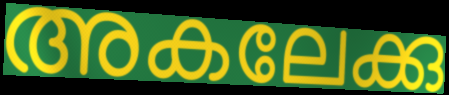
അകലേക്കു